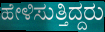
ಹೇಳಿಸುತ್ತಿದ್ದರು